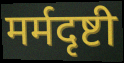
मर्मदृष्टी